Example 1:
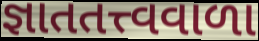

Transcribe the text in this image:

જ્ઞાતતત્ત્વવાળા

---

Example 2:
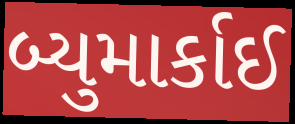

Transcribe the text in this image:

બ્યુમાર્કાઈ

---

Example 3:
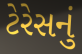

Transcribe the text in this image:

ટેરેસનું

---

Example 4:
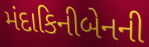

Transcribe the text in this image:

મંદાકિનીબેનની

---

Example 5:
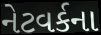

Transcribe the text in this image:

નેટવર્કના